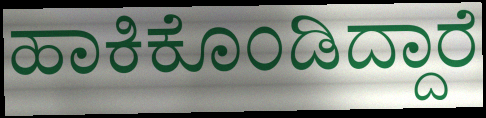
ಹಾಕಿಕೊಂಡಿದ್ದಾರೆ